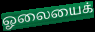
ஓலையைக்